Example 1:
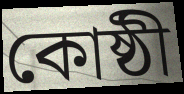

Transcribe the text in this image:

কোষ্ঠী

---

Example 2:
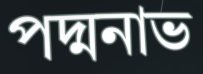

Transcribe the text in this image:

পদ্মনাভ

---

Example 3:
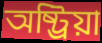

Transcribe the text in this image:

অষ্ট্রিয়া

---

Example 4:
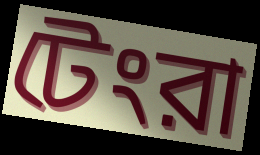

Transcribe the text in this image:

টেংরা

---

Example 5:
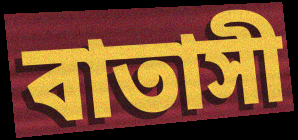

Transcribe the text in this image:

বাতাসী